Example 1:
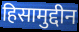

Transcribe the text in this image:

हिसामुद्दीन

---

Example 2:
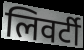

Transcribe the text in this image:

लिवर्टी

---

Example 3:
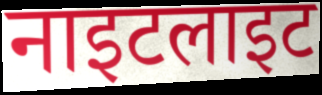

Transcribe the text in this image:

नाइटलाइट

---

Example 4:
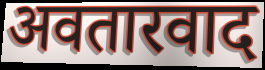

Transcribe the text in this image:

अवतारवाद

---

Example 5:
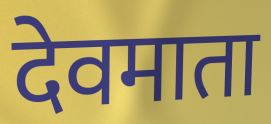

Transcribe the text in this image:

देवमाता